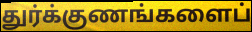
துர்க்குணங்களைப்